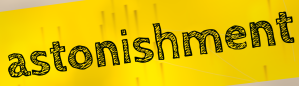
astonishment